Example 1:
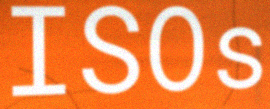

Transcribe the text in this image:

ISOs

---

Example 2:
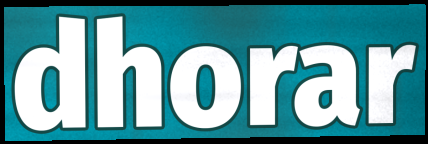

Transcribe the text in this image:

dhorar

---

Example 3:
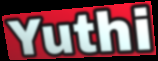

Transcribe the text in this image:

Yuthi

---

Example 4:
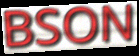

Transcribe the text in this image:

BSON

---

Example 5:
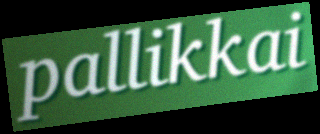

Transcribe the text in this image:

pallikkai